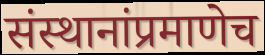
संस्थानांप्रमाणेच